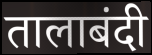
तालाबंदी